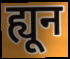
ह्यून